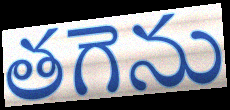
తగెను